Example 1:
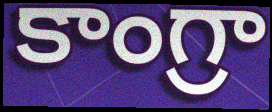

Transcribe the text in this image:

కాంగ్రా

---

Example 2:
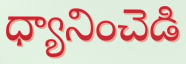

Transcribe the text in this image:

ధ్యానించెడి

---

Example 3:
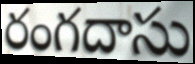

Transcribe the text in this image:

రంగదాసు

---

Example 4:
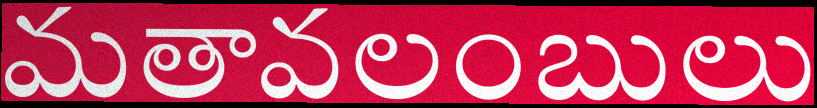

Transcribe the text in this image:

మతావలంబులు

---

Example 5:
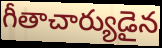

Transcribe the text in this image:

గీతాచార్యుడైన